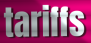
tariffs